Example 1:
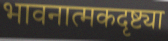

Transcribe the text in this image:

भावनात्मकदृष्ट्या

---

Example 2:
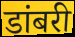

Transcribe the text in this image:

डांबरी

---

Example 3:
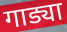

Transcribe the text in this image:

गाड्या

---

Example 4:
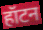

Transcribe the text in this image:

हॉटन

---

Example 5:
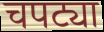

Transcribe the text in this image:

चपट्या